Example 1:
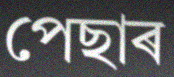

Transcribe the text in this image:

পেছাৰ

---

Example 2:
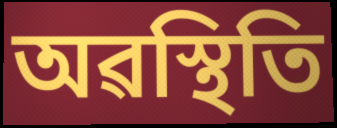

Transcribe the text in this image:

অৱস্থিতি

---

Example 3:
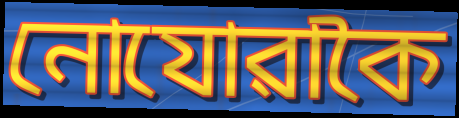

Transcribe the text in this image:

নোযোৱাকৈ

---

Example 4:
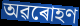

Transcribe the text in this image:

অৱৰোহণ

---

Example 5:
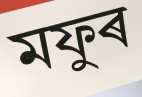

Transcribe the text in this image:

মফুৰ